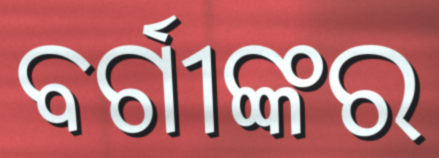
ବର୍ଗୀଙ୍କର